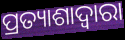
ପ୍ରତ୍ୟାଶାଦ୍ୱାରା